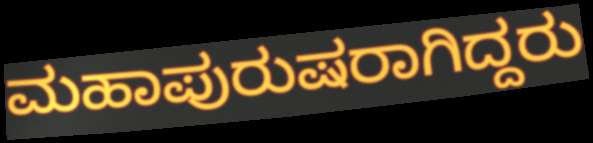
ಮಹಾಪುರುಷರಾಗಿದ್ದರು